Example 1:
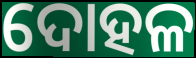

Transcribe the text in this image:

ଦୋହଳ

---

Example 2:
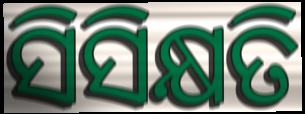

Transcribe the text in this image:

ସିସିକ୍ଷତି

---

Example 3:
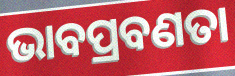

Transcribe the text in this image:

ଭାବପ୍ରବଣତା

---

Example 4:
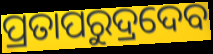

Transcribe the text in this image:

ପ୍ରତାପରୁଦ୍ରଦେବ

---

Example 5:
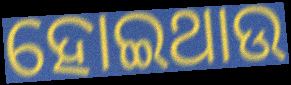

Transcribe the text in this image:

ହୋଇଥାଉ